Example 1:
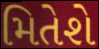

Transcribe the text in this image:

મિતેશે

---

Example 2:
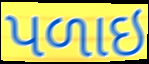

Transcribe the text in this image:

પળાઇ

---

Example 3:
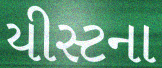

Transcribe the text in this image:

યીસ્ટના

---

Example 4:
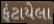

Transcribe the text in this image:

ફંટાયેલા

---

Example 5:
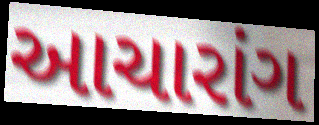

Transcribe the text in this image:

આચારાંગ